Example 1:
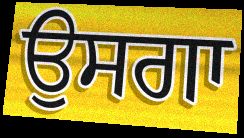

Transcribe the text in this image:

ਉਸਗਾ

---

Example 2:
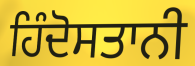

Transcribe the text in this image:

ਹਿੰਦੋਸਤਾਨੀ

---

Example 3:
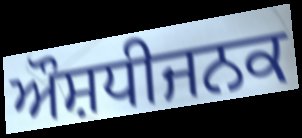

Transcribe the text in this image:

ਔਸ਼ਧੀਜਨਕ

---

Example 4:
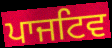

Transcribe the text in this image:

ਪਾਜਟਿਵ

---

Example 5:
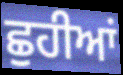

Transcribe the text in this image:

ਛੁਹੀਆਂ